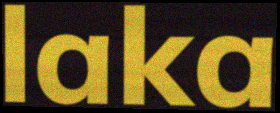
laka